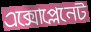
এক্সোপ্লেনেট